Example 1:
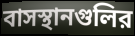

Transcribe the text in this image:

বাসস্থানগুলির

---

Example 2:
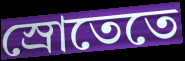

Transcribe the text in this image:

স্রোতেতে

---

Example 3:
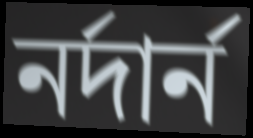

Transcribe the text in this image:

নর্দার্ন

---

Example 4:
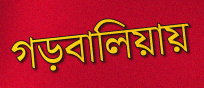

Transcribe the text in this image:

গড়বালিয়ায়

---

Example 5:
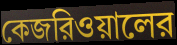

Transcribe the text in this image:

কেজরিওয়ালের